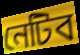
নেটিব